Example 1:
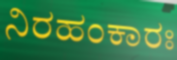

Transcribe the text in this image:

ನಿರಹಂಕಾರಃ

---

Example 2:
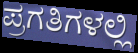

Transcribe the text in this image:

ಪ್ರಗತಿಗಳಲ್ಲಿ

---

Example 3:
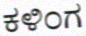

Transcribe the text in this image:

ಕಳಿಂಗ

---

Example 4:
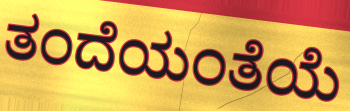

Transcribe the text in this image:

ತಂದೆಯಂತೆಯೆ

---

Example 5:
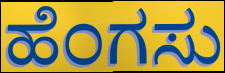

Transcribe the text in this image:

ಹೆಂಗಸು